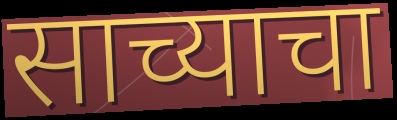
साच्याचा